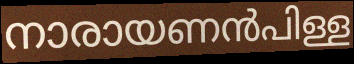
നാരായണൻപിള്ള